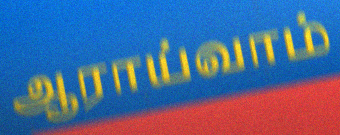
ஆராய்வாம்